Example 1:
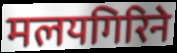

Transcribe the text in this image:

मलयगिरिने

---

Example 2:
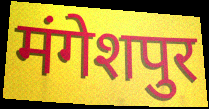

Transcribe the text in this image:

मंगेशपुर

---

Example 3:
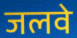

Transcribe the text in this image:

जलवे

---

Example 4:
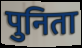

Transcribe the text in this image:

पुनिता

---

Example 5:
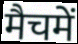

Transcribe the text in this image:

मैचमें